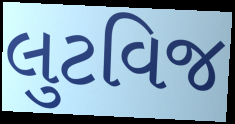
લુટવિજ